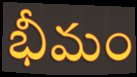
భీమం